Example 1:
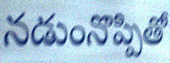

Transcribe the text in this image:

నడుంనొప్పితో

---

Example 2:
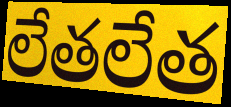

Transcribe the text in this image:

లేతలేత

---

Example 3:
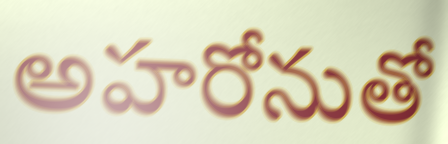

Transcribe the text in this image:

అహరోనుతో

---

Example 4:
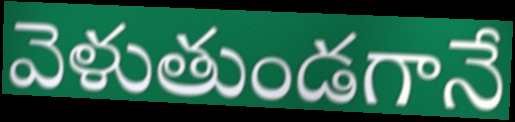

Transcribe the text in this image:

వెళుతుండగానే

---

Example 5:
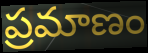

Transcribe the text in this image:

ప్రమాణం